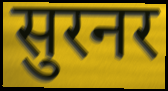
सुरनर